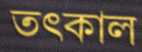
তৎকাল